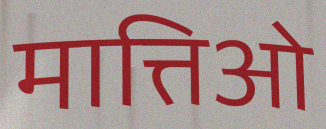
मात्तिओ